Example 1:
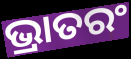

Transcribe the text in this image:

ଭ୍ରାତରଂ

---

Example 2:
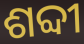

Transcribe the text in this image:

ଶବ୍ଦୀ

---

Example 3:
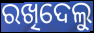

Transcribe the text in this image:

ରଖିଦେଲୁ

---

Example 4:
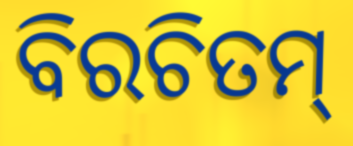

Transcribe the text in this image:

ବିରଚିତମ୍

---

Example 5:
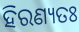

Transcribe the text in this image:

ହିରଣ୍ୟତଃ